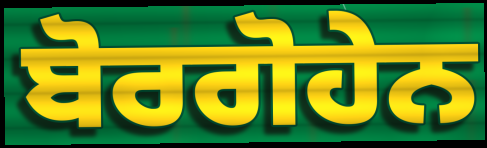
ਬੋਰਗੋਹੇਨ